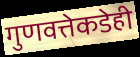
गुणवत्तेकडेही